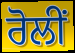
ਰੋਲੀਂ